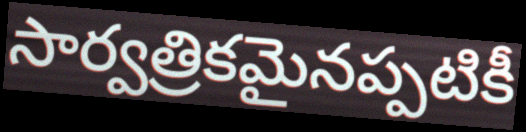
సార్వత్రికమైనప్పటికీ